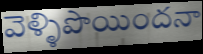
వెళ్ళిపొయిందనా